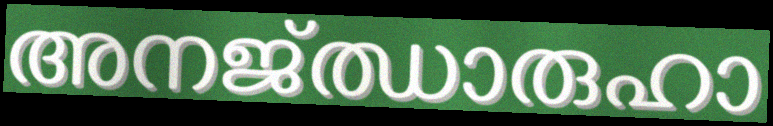
അനജ്ഝാരുഹാ